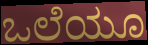
ಒಲೆಯೂ